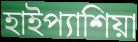
হাইপ্যাশিয়া